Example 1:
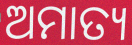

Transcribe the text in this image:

ଅମାତ୍ୟ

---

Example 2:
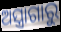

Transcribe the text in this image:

ଅସ୍ତ୍ରାଗାରୁ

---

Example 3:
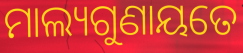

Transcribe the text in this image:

ମାଲ୍ୟଗୁଣାୟତେ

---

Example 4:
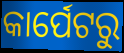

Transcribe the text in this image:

କାର୍ପେଟରୁ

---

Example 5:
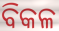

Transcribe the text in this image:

ବିକଳ